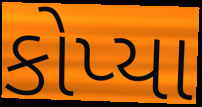
કોપ્યા